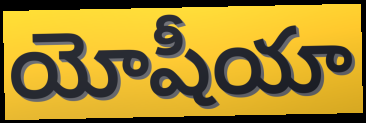
యోషీయా